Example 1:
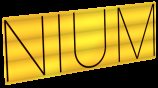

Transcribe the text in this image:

NIUM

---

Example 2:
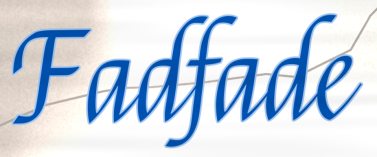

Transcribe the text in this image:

Fadfade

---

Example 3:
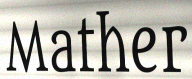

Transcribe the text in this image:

Mather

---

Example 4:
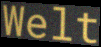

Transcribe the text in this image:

Welt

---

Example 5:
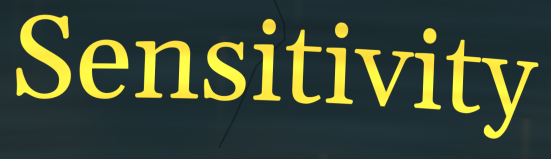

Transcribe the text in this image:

Sensitivity